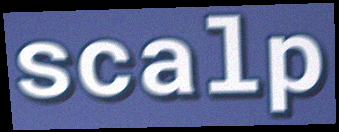
scalp